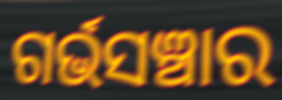
ଗର୍ଭସଞ୍ଚାର